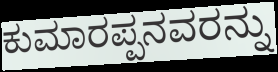
ಕುಮಾರಪ್ಪನವರನ್ನು